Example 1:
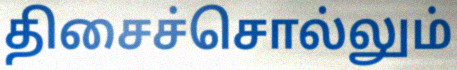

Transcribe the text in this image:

திசைச்சொல்லும்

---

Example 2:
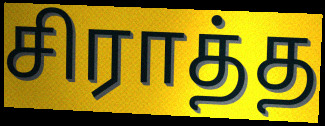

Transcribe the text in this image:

சிராத்த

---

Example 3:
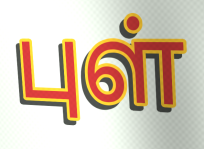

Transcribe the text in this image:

புள்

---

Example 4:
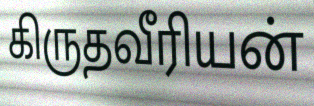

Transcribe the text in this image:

கிருதவீரியன்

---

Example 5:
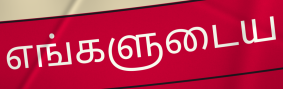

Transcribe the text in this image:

எங்களுடைய